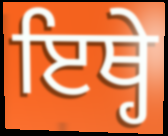
ਇਥ੍ਹੇ